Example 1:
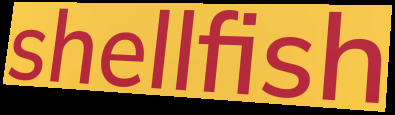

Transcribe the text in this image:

shellfish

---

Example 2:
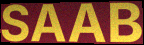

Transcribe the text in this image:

SAAB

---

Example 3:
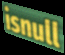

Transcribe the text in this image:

isnull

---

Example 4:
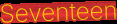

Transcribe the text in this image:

Seventeen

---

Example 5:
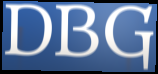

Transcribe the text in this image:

DBG